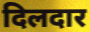
दिलदार